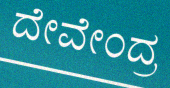
ದೇವೇಂದ್ರ